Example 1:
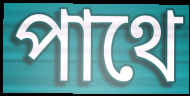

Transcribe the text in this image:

পাথে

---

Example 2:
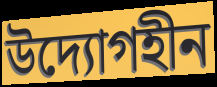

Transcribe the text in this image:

উদ্যোগহীন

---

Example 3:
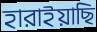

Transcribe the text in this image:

হারাইয়াছি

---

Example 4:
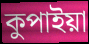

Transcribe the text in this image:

কুপাইয়া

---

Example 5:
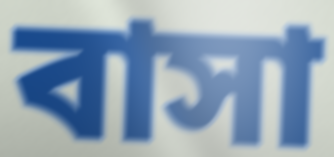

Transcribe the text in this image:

বাসা